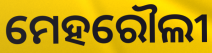
ମେହରୌଲୀ